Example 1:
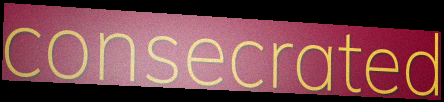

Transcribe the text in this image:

consecrated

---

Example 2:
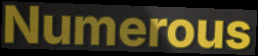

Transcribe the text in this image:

Numerous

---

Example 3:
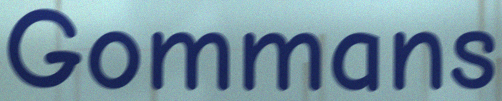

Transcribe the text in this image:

Gommans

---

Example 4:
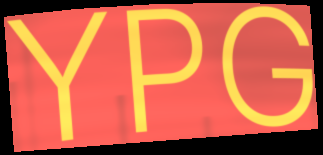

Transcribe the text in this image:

YPG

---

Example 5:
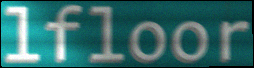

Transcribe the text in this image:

lfloor